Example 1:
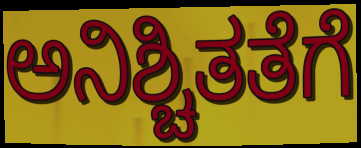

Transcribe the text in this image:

ಅನಿಶ್ಚಿತತೆಗೆ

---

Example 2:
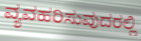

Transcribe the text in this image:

ವ್ಯವಹರಿಸುವುದರಲ್ಲಿ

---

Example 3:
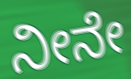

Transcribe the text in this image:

ನೀನೇ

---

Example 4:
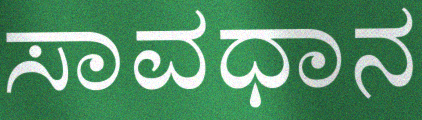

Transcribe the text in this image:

ಸಾವಧಾನ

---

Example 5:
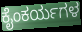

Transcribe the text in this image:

ಕೈಂಕರ್ಯಗಳ